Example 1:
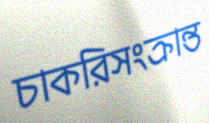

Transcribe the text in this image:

চাকরিসংক্রান্ত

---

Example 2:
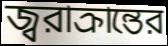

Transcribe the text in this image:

জ্বরাক্রান্তের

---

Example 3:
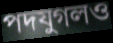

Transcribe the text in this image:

পদযুগলও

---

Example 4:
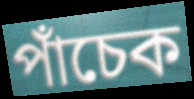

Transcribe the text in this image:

পাঁচেক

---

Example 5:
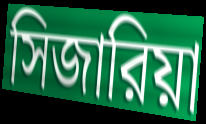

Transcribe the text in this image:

সিজারিয়া